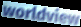
worldview